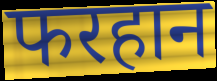
फरहान